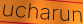
ucharun